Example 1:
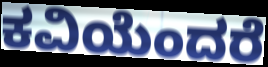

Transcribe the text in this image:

ಕವಿಯೆಂದರೆ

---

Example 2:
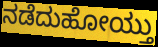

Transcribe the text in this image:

ನಡೆದುಹೋಯ್ತು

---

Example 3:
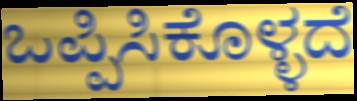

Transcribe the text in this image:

ಒಪ್ಪಿಸಿಕೊಳ್ಳದೆ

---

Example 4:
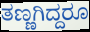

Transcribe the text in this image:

ತಣ್ಣಗಿದ್ದರೂ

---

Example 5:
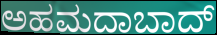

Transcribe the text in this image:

ಅಹಮದಾಬಾದ್